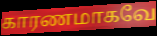
காரணமாகவே